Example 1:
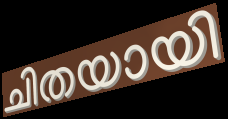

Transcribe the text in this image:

ചിതയായി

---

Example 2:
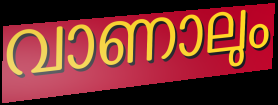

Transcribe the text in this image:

വാണാലും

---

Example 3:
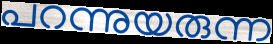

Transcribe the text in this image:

പറന്നുയരുന്ന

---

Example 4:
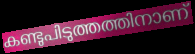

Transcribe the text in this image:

കണ്ടുപിടുത്തത്തിനാണ്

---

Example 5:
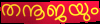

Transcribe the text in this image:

തനൂജയും